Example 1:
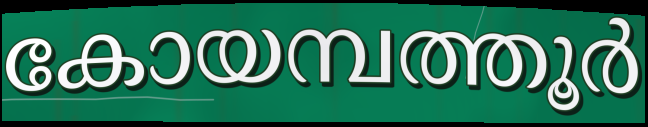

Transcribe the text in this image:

കോയമ്പത്തൂർ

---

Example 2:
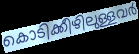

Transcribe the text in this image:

കൊടിക്കീഴിലുള്ളവർ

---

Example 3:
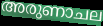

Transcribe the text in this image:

അരുണാചല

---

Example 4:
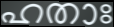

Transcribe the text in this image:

ഹതാഃ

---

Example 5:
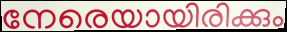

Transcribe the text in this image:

നേരെയായിരിക്കും